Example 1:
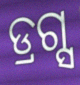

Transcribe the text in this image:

ଡ୍ରଗ୍ସ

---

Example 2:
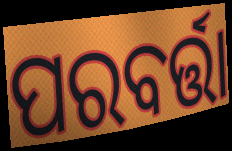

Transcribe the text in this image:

ପରବର୍ତ୍ତା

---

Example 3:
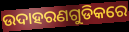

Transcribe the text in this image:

ଉଦାହରଣଗୁଡିକରେ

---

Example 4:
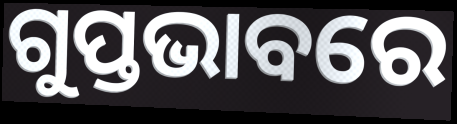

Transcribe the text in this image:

ଗୁପ୍ତଭାବରେ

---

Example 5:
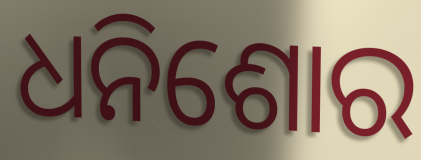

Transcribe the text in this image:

ଧନିଶୋର